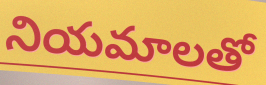
నియమాలతో